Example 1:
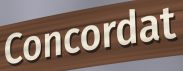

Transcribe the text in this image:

Concordat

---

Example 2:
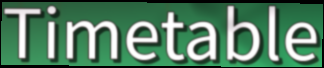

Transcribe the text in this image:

Timetable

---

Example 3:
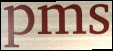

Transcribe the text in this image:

pms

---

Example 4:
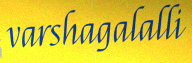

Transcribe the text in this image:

varshagalalli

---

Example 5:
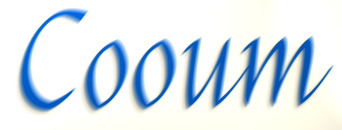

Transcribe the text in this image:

Cooum